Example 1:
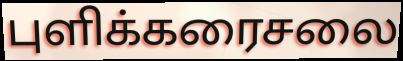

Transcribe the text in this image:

புளிக்கரைசலை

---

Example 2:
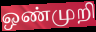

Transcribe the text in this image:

ஒண்முறி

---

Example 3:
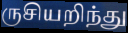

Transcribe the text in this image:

ருசியறிந்து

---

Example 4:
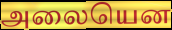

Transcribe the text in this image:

அலையென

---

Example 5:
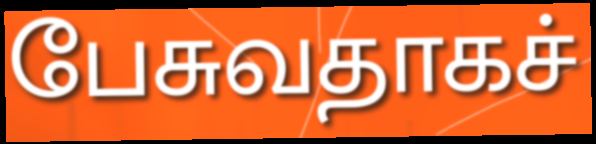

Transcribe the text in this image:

பேசுவதாகச்